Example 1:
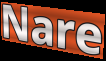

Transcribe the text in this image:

Nare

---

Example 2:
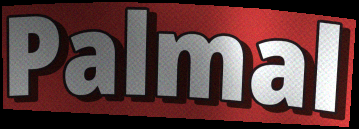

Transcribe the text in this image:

Palmal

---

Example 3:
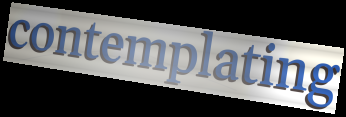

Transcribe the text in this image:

contemplating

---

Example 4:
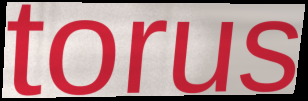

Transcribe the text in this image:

torus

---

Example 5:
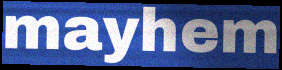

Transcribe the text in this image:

mayhem